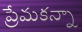
ప్రేమకన్నా